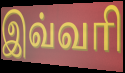
இவ்வரி